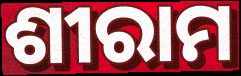
ଶୀରାମ